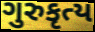
ગુરુકૃત્ય